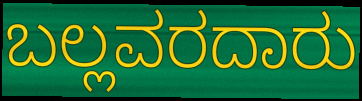
ಬಲ್ಲವರದಾರು